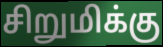
சிறுமிக்கு